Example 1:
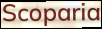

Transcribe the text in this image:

Scoparia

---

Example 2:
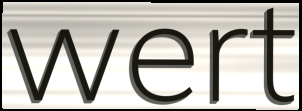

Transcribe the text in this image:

wert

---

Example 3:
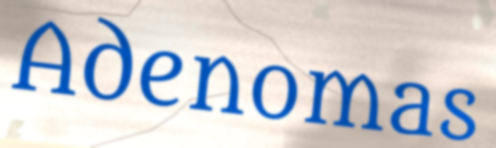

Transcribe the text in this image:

Adenomas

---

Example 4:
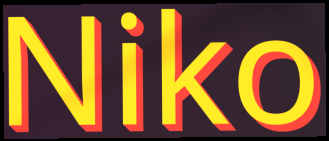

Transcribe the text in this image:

Niko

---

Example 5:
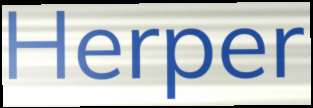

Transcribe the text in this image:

Herper